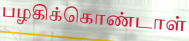
பழகிக்கொண்டாள்